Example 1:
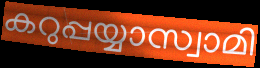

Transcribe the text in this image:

കറുപ്പയ്യാസ്വാമി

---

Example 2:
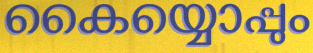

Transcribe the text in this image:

കൈയ്യൊപ്പും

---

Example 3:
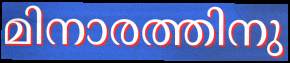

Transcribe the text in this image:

മിനാരത്തിനു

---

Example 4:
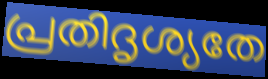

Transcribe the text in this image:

പ്രതിദൃശ്യതേ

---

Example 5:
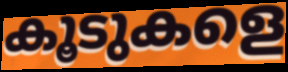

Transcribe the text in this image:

കൂടുകളെ